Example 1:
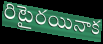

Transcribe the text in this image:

రిటైరయినాక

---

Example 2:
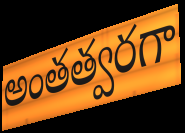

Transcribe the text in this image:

అంతత్వరగా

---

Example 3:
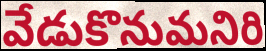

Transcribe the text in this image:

వేడుకొనుమనిరి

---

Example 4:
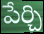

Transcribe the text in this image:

పేర్చి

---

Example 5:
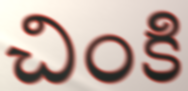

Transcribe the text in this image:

చింకి